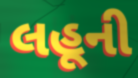
લહૂની